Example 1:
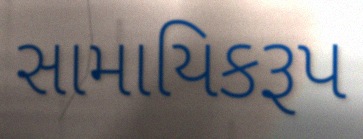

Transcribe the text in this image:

સામાયિકરૂપ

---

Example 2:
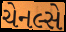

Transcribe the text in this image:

ચેનલ્સે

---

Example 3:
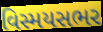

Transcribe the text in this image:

વિસ્મયસભર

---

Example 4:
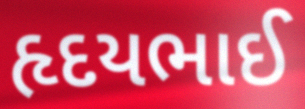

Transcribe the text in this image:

હૃદયભાઈ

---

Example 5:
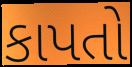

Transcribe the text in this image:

કાપતો